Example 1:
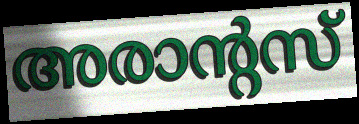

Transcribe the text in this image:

അരാന്റസ്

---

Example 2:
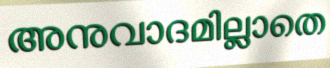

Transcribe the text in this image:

അനുവാദമില്ലാതെ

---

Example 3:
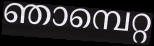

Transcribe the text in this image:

ഞാമ്പെറ്റ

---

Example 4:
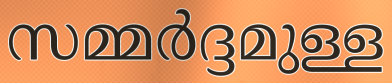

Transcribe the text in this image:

സമ്മർദ്ദമുള്ള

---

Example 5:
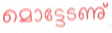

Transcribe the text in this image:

മൊട്ടേടണു്